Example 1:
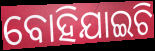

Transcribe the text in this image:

ବୋହିଯାଇଚି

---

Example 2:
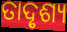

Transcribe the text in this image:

ତାଦୃଶ୍ୟ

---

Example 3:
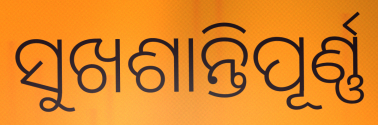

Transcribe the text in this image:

ସୁଖଶାନ୍ତିପୂର୍ଣ୍ଣ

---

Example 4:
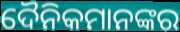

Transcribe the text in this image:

ଦୈନିକମାନଙ୍କର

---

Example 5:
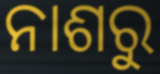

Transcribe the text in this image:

ନାଶରୁ